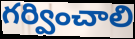
గర్వించాలి